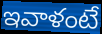
ఇవాళంటే